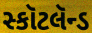
સ્કૉટલૅન્ડ